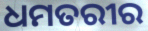
ଧମତରୀର